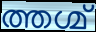
ത്തഗ്മ്